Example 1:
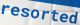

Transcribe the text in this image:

resorted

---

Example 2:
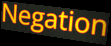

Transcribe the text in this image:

Negation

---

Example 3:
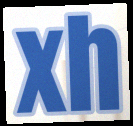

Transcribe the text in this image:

xh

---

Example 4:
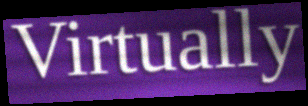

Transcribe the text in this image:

Virtually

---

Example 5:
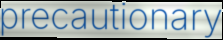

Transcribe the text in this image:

precautionary